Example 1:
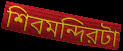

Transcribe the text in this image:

শিবমন্দিরটা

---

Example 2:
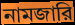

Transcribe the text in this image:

নামজারি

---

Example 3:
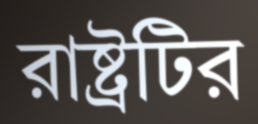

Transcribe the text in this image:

রাষ্ট্রটির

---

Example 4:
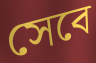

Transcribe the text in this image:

সেবে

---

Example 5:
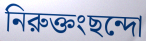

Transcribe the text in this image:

নিরুক্তংছন্দো